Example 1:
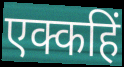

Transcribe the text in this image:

एक्कहिं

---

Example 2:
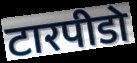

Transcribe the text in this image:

टारपीडो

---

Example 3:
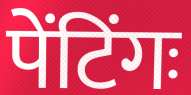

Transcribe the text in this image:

पेंटिंगः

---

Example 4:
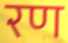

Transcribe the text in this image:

रण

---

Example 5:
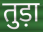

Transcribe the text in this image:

तुड़ा